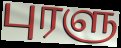
புரளு